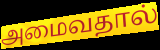
அமைவதால்